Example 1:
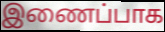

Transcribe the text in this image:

இணைப்பாக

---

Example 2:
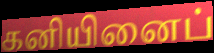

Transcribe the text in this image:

கனியினைப்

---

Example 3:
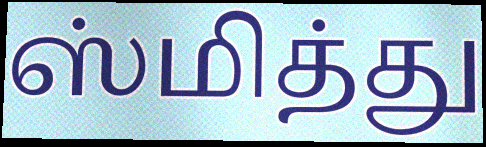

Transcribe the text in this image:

ஸ்மித்து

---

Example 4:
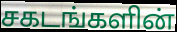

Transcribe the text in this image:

சகடங்களின்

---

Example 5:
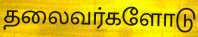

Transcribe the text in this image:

தலைவர்களோடு